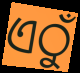
ଏଠୁଁ